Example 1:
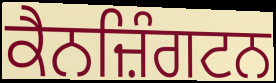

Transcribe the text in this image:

ਕੈਨਜ਼ਿੰਗਟਨ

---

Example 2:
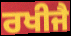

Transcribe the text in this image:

ਰਖੀਜੈ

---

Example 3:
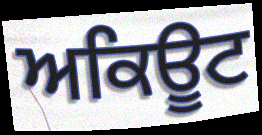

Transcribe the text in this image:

ਅਕਿਊਟ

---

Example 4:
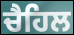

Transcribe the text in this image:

ਚੈਹਿਲ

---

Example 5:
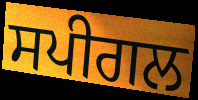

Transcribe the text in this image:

ਸਪੀਗਲ